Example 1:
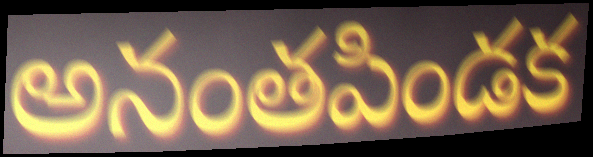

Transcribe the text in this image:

అనంతపిండక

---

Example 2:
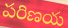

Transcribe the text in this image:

పరిణయ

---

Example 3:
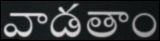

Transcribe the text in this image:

వాడతాం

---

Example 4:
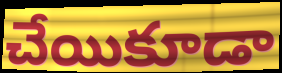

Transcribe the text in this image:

చేయికూడా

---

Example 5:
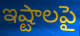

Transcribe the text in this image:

ఇష్టాలపై